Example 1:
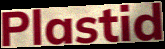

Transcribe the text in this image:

Plastid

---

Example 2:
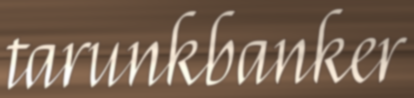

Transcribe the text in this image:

tarunkbanker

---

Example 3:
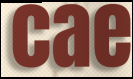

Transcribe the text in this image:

cae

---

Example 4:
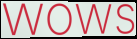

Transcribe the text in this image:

wows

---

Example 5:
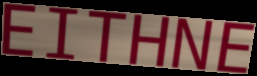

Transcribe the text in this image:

EITHNE